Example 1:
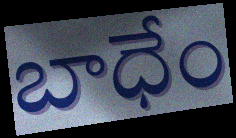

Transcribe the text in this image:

బాధేం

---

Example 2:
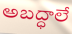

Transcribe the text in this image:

అబద్ధాలే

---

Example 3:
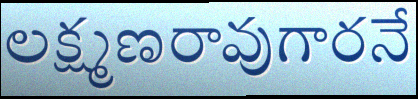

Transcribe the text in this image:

లక్ష్మణరావుగారనే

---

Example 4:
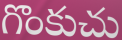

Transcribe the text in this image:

గొంకుచు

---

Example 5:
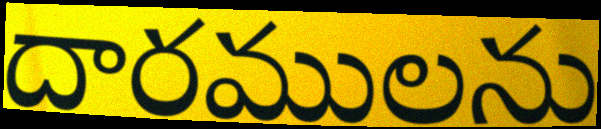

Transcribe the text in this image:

దారములను